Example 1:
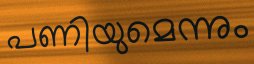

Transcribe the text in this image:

പണിയുമെന്നും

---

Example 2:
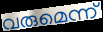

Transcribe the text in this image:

വരുമെന്ന്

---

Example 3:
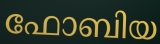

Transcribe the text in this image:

ഫോബിയ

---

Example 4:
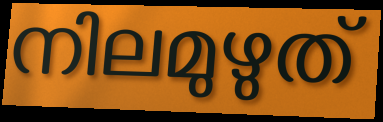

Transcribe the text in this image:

നിലമുഴുത്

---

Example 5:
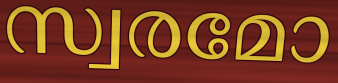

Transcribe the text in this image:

സ്വരമോ